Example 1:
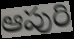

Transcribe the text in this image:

ఆపురి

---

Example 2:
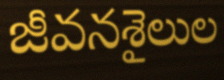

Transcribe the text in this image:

జీవనశైలుల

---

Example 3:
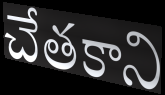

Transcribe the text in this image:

చేతకాని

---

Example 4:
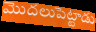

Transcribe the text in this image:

మొదలుపెట్టాడు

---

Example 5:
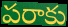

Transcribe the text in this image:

పరాకు